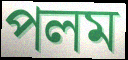
পলম